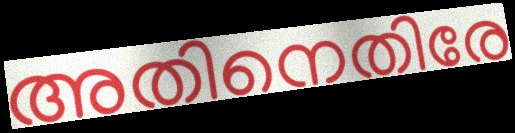
അതിനെതിരേ